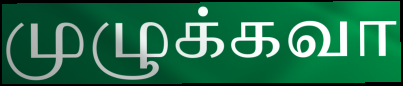
முழுக்கவா